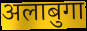
अलाबुगा